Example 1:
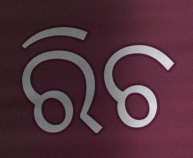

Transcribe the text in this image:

ରିଚ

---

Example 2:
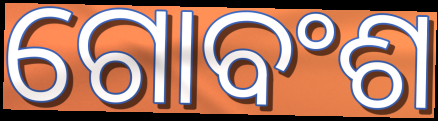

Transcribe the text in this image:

ଗୋବଂଶ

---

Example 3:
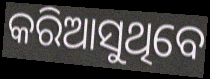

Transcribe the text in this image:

କରିଆସୁଥିବେ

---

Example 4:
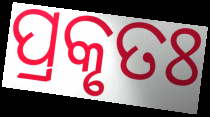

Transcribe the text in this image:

ପ୍ରକୃତଃ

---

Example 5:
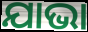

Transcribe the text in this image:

ଯାଭା